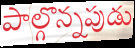
పాల్గొన్నపుడు